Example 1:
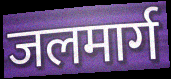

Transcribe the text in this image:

जलमार्ग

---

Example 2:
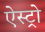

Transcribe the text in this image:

ऐस्ट्रो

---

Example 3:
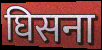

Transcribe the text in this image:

घिसना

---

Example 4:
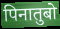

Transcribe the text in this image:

पिनातुबो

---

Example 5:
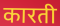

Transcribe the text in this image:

कारती